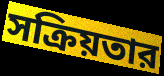
সক্রিয়তার